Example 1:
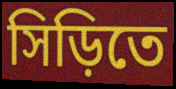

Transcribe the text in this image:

সিড়িতে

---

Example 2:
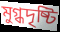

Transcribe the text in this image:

মুগ্ধদৃষ্টি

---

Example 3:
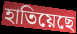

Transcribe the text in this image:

হাতিয়েছে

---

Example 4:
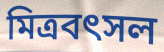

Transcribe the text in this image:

মিত্রবৎসল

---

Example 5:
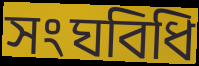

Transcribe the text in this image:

সংঘবিধি